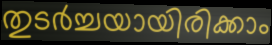
തുടർച്ചയായിരിക്കാം